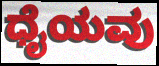
ಧೈಯವು